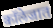
कॉलेजात